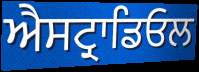
ਐਸਟ੍ਰਾਡਿਓਲ